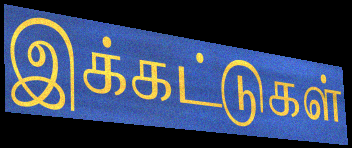
இக்கட்டுகள்